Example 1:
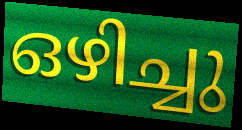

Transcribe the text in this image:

ഒഴിച്ചു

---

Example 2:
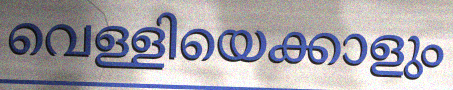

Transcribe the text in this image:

വെള്ളിയെക്കാളും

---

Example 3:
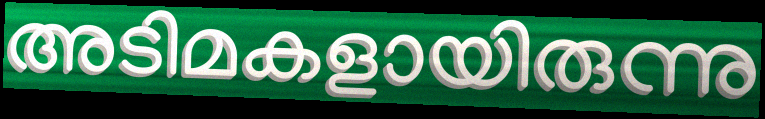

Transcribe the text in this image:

അടിമകളായിരുന്നു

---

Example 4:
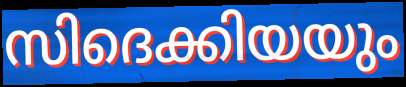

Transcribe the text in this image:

സിദെക്കിയയും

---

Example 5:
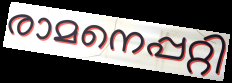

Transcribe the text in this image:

രാമനെപ്പറ്റി